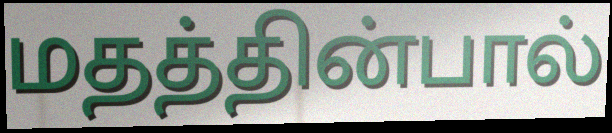
மதத்தின்பால்